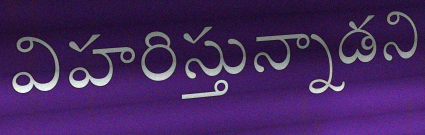
విహరిస్తున్నాడని